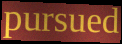
pursued